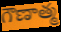
గౌణాత్మ